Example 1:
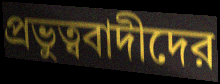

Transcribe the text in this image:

প্রভুত্ববাদীদের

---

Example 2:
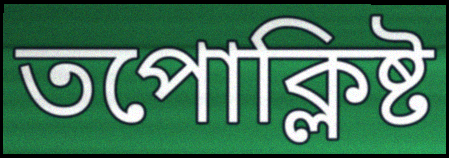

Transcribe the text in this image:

তপোক্লিষ্ট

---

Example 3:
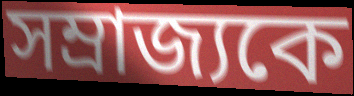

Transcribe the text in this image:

সম্রাজ্যকে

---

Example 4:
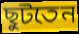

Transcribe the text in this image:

ছুটতেন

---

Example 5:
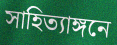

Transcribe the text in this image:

সাহিত্যাঙ্গনে